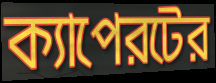
ক্যাপেরটের